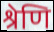
श्रेणि